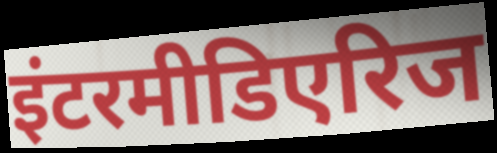
इंटरमीडिएरिज